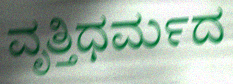
ವೃತ್ತಿಧರ್ಮದ